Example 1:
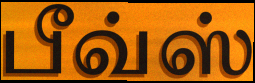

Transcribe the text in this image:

பீவ்ஸ்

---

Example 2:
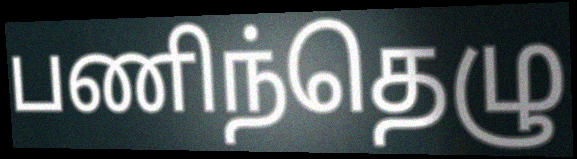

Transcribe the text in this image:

பணிந்தெழு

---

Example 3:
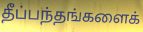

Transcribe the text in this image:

தீப்பந்தங்களைக்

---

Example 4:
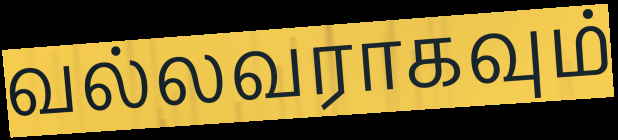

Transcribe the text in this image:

வல்லவராகவும்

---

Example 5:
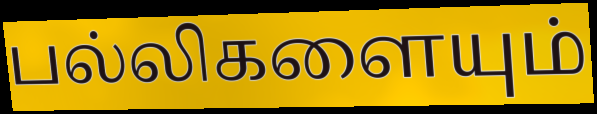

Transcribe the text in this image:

பல்லிகளையும்